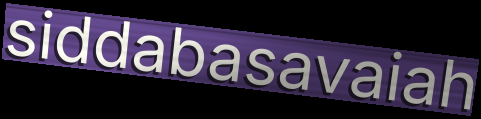
siddabasavaiah